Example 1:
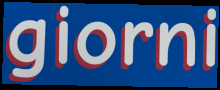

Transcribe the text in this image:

giorni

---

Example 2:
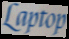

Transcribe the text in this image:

Laptop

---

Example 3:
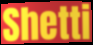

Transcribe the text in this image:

Shetti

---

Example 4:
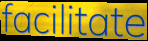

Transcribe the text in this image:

facilitate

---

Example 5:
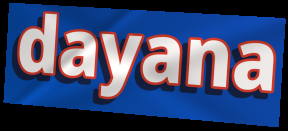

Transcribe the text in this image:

dayana